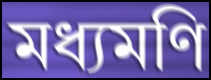
মধ্যমণি